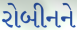
રોબીનને